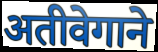
अतीवेगाने